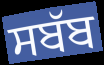
ਸਬੱਬ